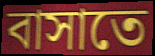
বাসাতে